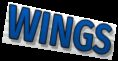
WINGS